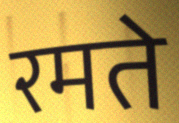
रमते